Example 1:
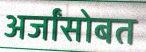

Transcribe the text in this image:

अर्जांसोबत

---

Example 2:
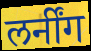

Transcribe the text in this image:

लर्नींग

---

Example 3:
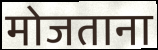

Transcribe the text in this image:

मोजताना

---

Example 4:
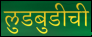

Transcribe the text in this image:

लुडबुडीची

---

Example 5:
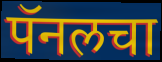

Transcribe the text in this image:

पॅनलचा